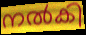
നൽകി